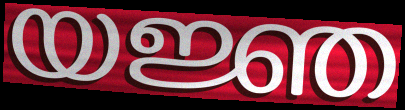
യജ്ഞ